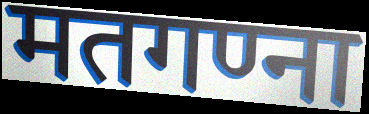
मतगण्ना